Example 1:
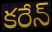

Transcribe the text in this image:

కరేన్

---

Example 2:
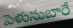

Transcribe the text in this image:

పెళుసుబారే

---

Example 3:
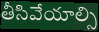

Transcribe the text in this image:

తీసివేయాల్సి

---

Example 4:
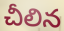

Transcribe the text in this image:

చీలిన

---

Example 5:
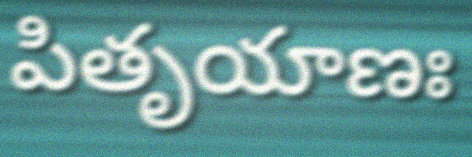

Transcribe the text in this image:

పితృయాణః